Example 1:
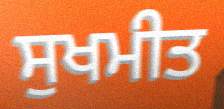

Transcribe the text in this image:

ਸੁਖਮੀਤ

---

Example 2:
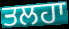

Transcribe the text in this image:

ਤਲਹਾ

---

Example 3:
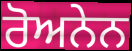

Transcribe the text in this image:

ਰੋਅਨੇਨ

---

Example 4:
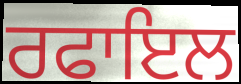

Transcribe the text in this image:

ਰਫਾਇਲ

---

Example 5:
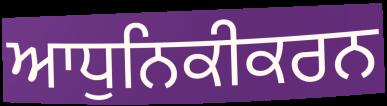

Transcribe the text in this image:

ਆਧੁਨਿਕੀਕਰਨ